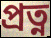
প্ৰত্ন